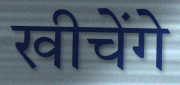
खीचेंगे